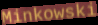
Minkowski